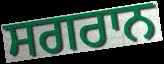
ਸਗਰਾਨ